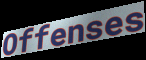
Offenses